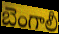
బెంగాలీ